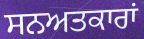
ਸਨਅਤਕਾਰਾਂ